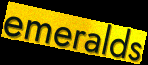
emeralds